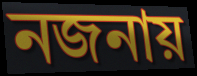
নজনায়